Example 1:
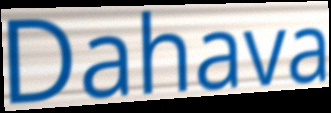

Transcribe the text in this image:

Dahava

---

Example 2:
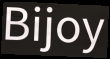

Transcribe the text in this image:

Bijoy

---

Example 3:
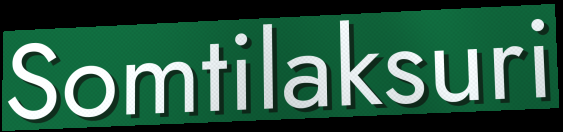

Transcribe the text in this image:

Somtilaksuri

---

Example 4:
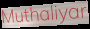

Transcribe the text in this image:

Muthaliyar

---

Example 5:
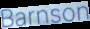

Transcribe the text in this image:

Barnson